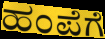
ಹಂಪೆಗೆ